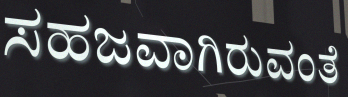
ಸಹಜವಾಗಿರುವಂತೆ